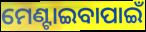
ମେଣ୍ଟାଇବାପାଇଁ